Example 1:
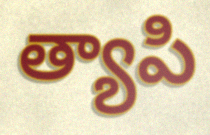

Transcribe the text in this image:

త్యాపి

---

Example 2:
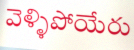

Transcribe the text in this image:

వెళ్ళిపోయేరు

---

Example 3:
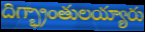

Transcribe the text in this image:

దిగ్భ్రాంతులయ్యారు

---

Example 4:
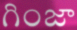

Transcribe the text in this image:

గింజా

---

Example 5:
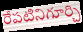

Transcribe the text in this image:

రేపటినిగూర్చి